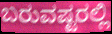
ಬರುವಷ್ಟರಲ್ಲಿ